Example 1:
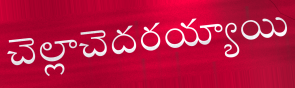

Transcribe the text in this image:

చెల్లాచెదరయ్యాయి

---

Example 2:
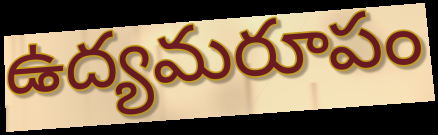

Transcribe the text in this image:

ఉద్యమరూపం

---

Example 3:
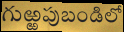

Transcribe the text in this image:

గుఱ్ఱపుబండిలో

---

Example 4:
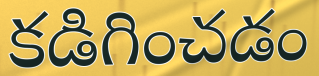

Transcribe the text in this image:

కడిగించడం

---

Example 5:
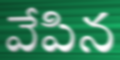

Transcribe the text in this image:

వేపిన